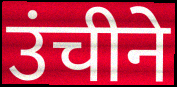
उंचीने